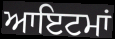
ਆਇਟਮਾਂ